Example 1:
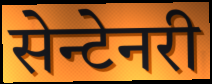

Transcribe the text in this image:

सेन्टेनरी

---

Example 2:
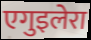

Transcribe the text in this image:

एगुइलेरा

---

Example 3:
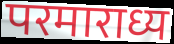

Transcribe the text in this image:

परमाराध्य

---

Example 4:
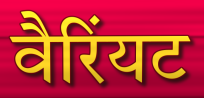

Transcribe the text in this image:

वैरिंयट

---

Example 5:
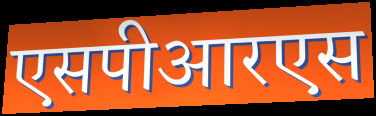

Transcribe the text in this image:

एसपीआरएस